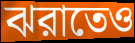
ঝরাতেও